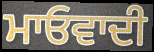
ਮਾਓਵਾਦੀ